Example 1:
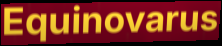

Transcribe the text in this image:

Equinovarus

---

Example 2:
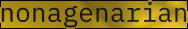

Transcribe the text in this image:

nonagenarian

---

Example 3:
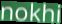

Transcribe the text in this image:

nokhi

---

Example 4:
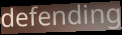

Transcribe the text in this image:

defending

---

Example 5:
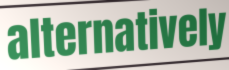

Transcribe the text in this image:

alternatively